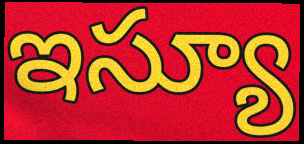
ఇస్యూ